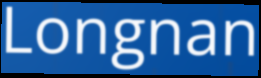
Longnan